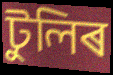
টুলিৰ